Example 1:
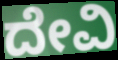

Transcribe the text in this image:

ದೇವಿ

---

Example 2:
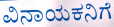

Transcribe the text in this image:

ವಿನಾಯಕನಿಗೆ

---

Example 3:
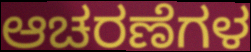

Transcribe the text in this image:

ಆಚರಣೆಗಳ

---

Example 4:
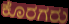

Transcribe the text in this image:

ಕೊರಗರು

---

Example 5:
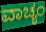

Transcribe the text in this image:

ವಾಚ್ಯಂ